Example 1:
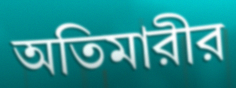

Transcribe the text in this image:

অতিমারীর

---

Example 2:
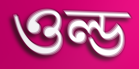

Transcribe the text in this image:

ওল্ড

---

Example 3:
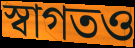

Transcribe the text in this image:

স্বাগতও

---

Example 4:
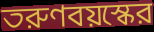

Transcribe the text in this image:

তরুণবয়স্কের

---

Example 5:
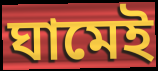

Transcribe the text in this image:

ঘামেই